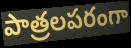
పాత్రలపరంగా